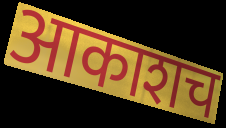
आकाशच